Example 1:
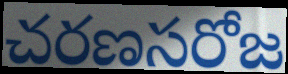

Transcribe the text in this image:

చరణసరోజ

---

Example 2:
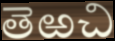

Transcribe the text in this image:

తెఱచి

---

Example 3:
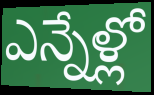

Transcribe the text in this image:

ఎన్నేళ్లో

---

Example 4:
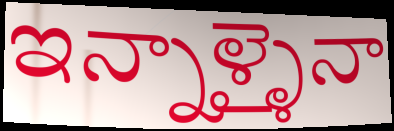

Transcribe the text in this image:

ఇన్నాళ్ళైనా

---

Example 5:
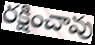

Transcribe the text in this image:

రక్షించావు